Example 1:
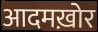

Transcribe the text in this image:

आदमख़ोर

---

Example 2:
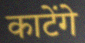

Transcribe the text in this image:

काटेंगे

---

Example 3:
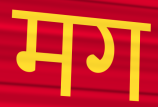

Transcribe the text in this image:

मग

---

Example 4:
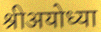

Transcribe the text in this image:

श्रीअयोध्या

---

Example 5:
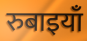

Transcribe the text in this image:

रुबाइयाँ